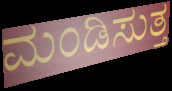
ಮಂಡಿಸುತ್ತ